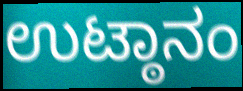
ಉಟ್ಠಾನಂ